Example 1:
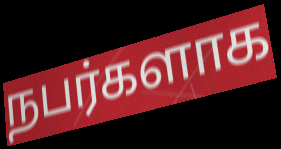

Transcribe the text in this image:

நபர்களாக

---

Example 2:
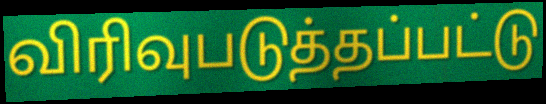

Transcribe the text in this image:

விரிவுபடுத்தப்பட்டு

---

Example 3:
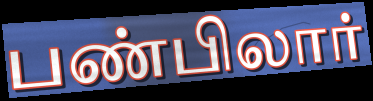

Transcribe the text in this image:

பண்பிலார்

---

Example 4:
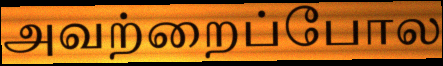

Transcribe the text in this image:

அவற்றைப்போல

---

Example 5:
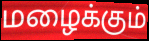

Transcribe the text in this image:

மழைக்கும்